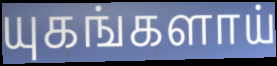
யுகங்களாய்